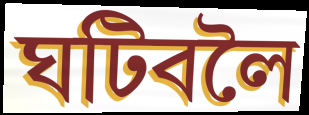
ঘটিবলৈ